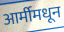
आर्मीमधून